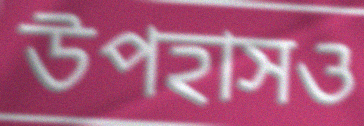
উপহাসও